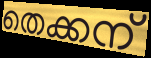
തെക്കന്